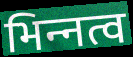
भिन्नत्व